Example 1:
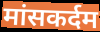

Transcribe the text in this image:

मांसकर्दम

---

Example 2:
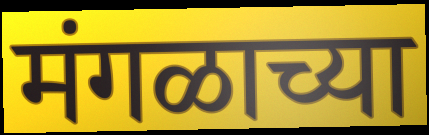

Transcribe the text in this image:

मंगळाच्या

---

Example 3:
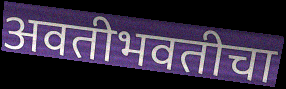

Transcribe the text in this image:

अवतीभवतीचा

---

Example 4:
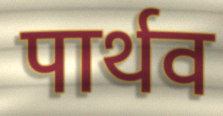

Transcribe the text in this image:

पार्थव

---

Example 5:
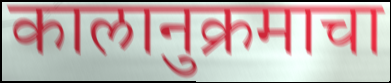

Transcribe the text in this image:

कालानुक्रमाचा